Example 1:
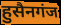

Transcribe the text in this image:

हुसैनगंज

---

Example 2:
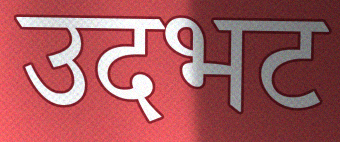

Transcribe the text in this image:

उदभट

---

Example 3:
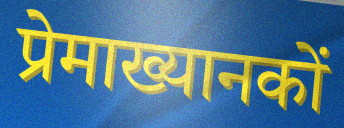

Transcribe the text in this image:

प्रेमाख्यानकों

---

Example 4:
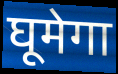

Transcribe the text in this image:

घूमेगा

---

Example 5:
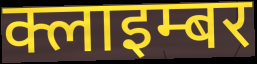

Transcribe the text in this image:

क्लाइम्बर